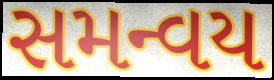
સમન્વય